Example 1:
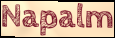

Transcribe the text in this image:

Napalm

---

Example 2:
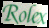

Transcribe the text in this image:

Rolex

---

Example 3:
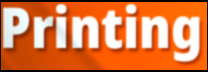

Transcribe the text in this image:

Printing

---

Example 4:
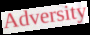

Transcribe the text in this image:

Adversity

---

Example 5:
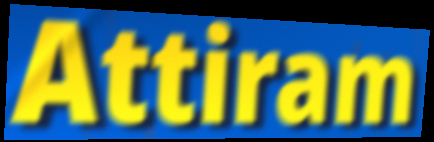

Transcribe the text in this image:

Attiram